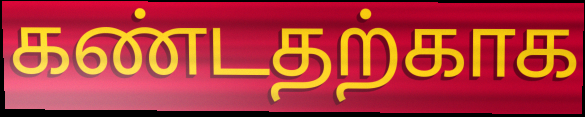
கண்டதற்காக